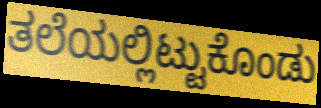
ತಲೆಯಲ್ಲಿಟ್ಟುಕೊಂಡು